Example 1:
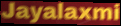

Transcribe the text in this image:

Jayalaxmi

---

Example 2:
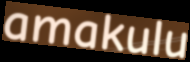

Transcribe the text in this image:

amakulu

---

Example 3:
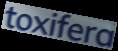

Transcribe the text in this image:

toxifera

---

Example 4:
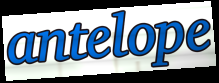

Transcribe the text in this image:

antelope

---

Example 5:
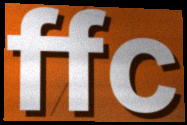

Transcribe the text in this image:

ffc